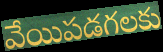
వేయిపడగలకు